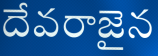
దేవరాజైన